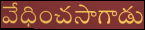
వేధించసాగాడు